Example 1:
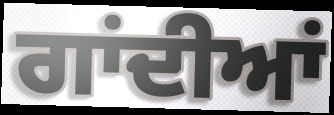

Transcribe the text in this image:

ਗਾਂਦੀਆਂ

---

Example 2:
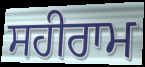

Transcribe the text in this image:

ਸਹੀਰਾਮ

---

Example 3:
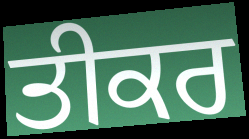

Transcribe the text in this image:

ਤੀਕਰ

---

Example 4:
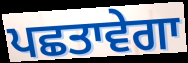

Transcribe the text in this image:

ਪਛਤਾਵੇਗਾ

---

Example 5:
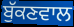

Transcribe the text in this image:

ਬੁੱਕਣਵਾਲ